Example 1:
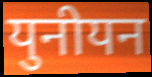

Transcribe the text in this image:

युनीयन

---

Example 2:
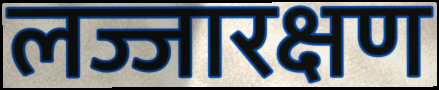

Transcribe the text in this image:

लज्जारक्षण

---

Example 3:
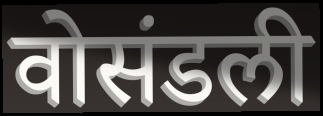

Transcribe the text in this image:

वोसंडली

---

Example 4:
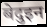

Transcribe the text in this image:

बेदुइन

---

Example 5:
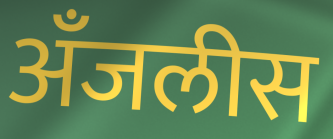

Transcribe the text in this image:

अँजलीस